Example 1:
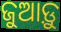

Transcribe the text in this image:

ଜୁଆଡ଼ୁ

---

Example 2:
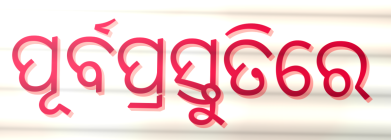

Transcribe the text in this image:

ପୂର୍ବପ୍ରସ୍ତୁତିରେ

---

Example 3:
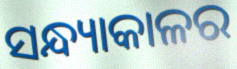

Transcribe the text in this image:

ସନ୍ଧ୍ୟାକାଳର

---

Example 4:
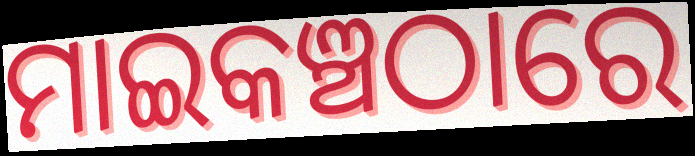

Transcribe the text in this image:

ମାଇକଞ୍ଚଠାରେ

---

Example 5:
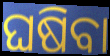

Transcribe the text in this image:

ଘଷିବା